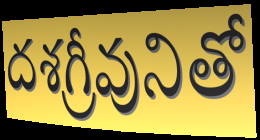
దశగ్రీవునితో